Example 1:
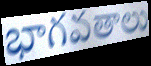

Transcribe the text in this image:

భాగవతాలు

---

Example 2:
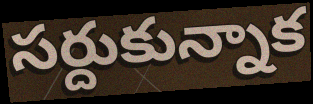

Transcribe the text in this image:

సర్దుకున్నాక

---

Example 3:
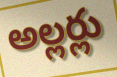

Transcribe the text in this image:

అల్లర్లు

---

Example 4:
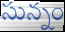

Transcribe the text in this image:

సున్నం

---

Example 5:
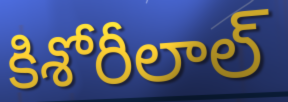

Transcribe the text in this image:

కిశోరీలాల్